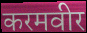
करमवीर